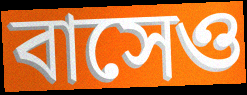
বাসেও